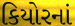
કિયોરનાં